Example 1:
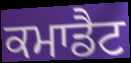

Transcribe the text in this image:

ਕਮਾਡੈਟ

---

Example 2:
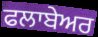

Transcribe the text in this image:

ਫਲਾਬੇਅਰ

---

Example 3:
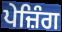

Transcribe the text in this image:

ਪੇਜ਼ਿੰਗ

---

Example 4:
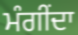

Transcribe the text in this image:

ਮੰਗੀਂਦਾ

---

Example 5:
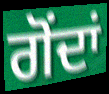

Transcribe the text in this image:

ਗੋਂਦਾਂ